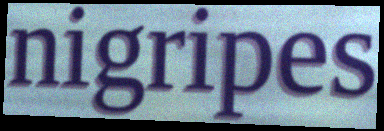
nigripes